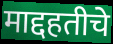
माद्दहतीचे